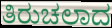
ತಿರುಚಲಾದ